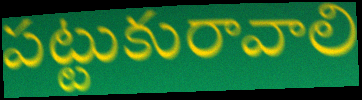
పట్టుకురావాలి